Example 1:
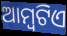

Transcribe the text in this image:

ଆମ୍ବଟିଏ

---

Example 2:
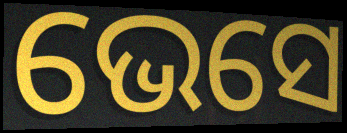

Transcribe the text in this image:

ଭେସେ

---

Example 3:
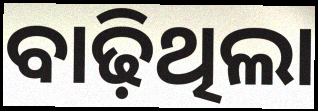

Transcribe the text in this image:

ବାଢ଼ିଥିଲା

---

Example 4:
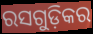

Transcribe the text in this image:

ରସଗୁଡ଼ିକର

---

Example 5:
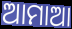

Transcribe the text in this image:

ଆମାଆ